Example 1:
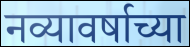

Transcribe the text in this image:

नव्यावर्षाच्या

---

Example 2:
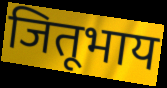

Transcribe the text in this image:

जितूभाय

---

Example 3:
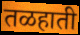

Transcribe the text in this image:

तळहाती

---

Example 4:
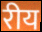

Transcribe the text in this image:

रीय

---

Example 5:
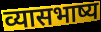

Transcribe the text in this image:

व्यासभाष्य